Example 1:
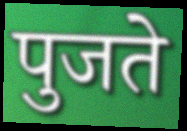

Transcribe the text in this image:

पुजते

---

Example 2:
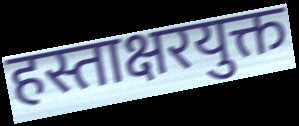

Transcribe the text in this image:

हस्ताक्षरयुक्त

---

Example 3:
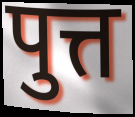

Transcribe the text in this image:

पुत्त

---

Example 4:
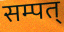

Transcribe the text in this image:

सम्पत्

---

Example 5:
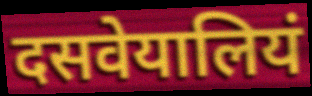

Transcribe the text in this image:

दसवेयालियं